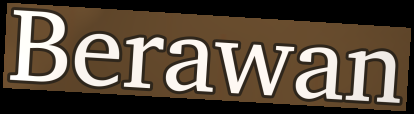
Berawan